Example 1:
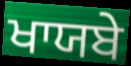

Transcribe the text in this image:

ਖਾਯਬੇ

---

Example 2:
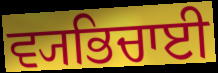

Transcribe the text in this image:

ਵ੍ਯਭਿਚਾਈ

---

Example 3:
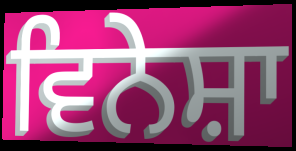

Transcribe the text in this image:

ਵਿਨੇਸ਼ਾ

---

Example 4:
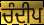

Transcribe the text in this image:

ਚੰਦੀਪ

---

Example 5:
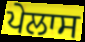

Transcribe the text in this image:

ਪੇਲਾਸ